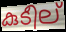
കുടീല്